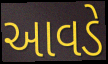
આવડે